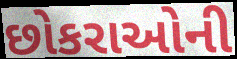
છોકરાઓની